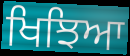
ਖਿਝਿਆ